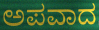
ಅಪವಾದ